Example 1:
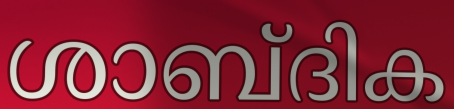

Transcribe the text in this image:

ശാബ്ദിക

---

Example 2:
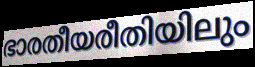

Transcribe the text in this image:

ഭാരതീയരീതിയിലും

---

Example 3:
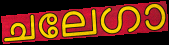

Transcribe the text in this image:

ചലേഗാ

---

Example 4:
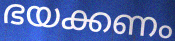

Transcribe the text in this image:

ഭയക്കണം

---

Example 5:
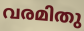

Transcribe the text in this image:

വരമിതു